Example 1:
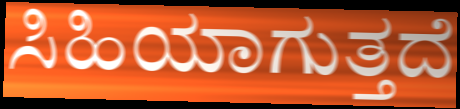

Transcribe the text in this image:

ಸಿಹಿಯಾಗುತ್ತದೆ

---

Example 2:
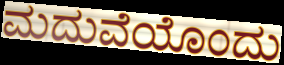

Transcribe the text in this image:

ಮದುವೆಯೊಂದು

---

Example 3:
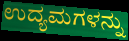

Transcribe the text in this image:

ಉದ್ಯಮಗಳನ್ನು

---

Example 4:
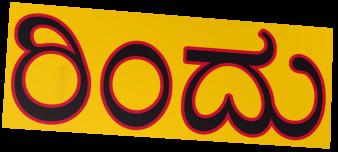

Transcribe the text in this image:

ರಿಂದು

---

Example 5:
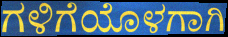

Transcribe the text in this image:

ಗಳಿಗೆಯೊಳಗಾಗಿ